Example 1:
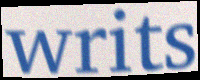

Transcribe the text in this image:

writs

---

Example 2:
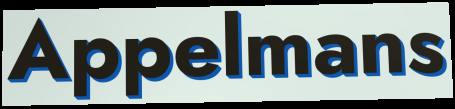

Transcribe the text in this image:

Appelmans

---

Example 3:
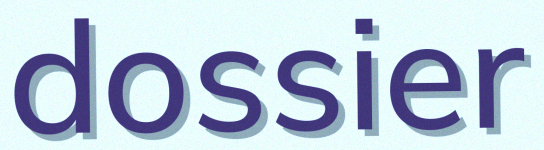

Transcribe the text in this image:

dossier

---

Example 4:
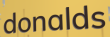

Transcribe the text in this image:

donalds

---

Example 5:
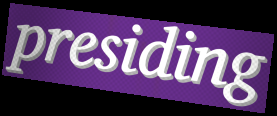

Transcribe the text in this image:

presiding